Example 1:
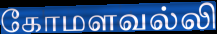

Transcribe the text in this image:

கோமளவல்லி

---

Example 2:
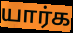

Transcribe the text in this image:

யார்க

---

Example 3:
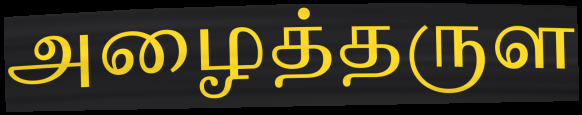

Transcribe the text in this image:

அழைத்தருள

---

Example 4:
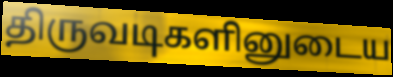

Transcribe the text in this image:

திருவடிகளினுடைய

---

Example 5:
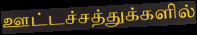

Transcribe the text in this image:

ஊட்டச்சத்துக்களில்